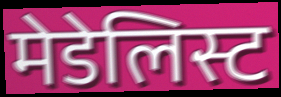
मेडेलिस्ट